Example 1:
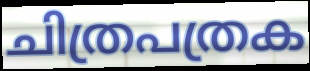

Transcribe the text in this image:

ചിത്രപത്രക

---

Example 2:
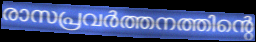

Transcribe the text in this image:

രാസപ്രവർത്തനത്തിന്റെ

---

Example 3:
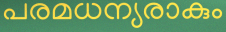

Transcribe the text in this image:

പരമധന്യരാകും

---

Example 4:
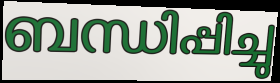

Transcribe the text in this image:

ബന്ധിപ്പിച്ചു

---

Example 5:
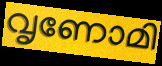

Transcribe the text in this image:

വൃണോമി